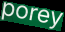
porey